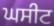
ਘਸੀਟ